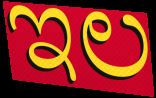
ಇಲ